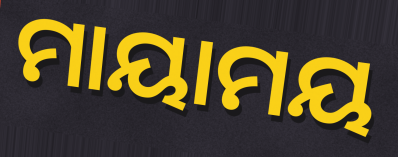
ମାୟାମୟ